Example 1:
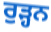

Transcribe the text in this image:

ਰੁੜ੍ਹਨ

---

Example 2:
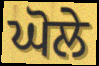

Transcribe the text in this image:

ਘੋਲੇ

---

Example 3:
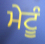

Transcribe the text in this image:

ਮੇਟੂੰ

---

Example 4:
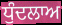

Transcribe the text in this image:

ਧੁੰਦਲਾਅ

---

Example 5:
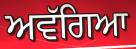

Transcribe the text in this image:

ਅਵੱਗਿਆ